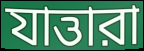
যাত্তারা